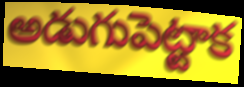
అడుగుపెట్టాక